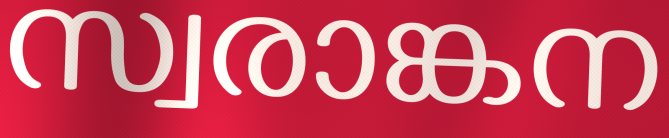
സ്വരാങ്കന